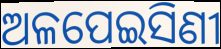
ଅଳପେଇସିଣୀ